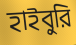
হাইবুরি